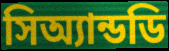
সিঅ্যান্ডডি